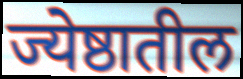
ज्येष्ठातील